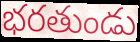
భరతుండు